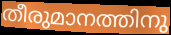
തീരുമാനത്തിനു